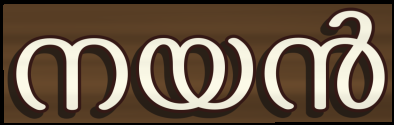
നയൻ